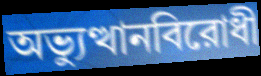
অভ্যুত্থানবিরোধী